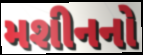
મશીનનો